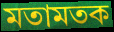
মতামতক